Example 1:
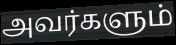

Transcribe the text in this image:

அவர்களும்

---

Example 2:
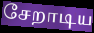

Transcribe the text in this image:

சேறாடிய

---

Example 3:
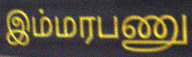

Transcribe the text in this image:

இம்மரபணு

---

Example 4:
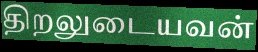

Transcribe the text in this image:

திறலுடையவன்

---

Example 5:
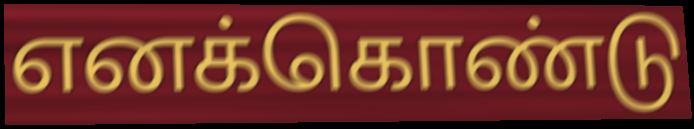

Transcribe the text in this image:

எனக்கொண்டு